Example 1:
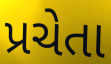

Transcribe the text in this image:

પ્રચેતા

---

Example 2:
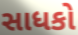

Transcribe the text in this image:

સાધકો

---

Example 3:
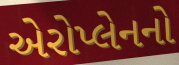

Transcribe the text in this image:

એરોપ્લેનનો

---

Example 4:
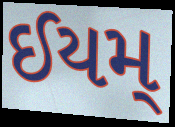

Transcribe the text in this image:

ઈયમ્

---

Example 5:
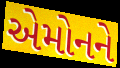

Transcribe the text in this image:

એમોનને